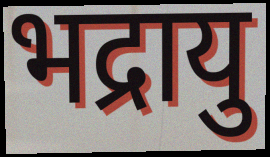
भद्रायु